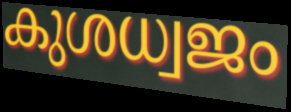
കുശധ്വജം